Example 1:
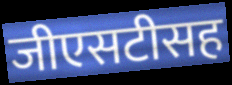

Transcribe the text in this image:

जीएसटीसह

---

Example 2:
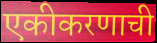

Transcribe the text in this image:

एकीकरणाची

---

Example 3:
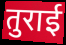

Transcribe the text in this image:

तुराई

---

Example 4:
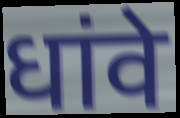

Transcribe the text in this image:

धांवे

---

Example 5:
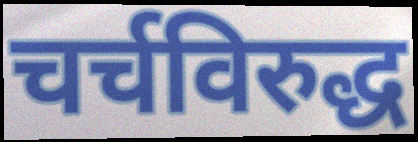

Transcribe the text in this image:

चर्चविरुद्ध